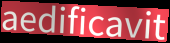
aedificavit